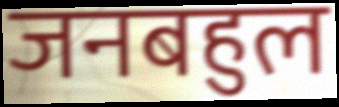
जनबहुल